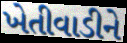
ખેતીવાડીને